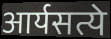
आर्यसत्ये